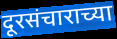
दूरसंचाराच्या